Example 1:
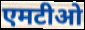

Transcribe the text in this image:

एमटीओ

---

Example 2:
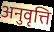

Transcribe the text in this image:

अनुवृत्ति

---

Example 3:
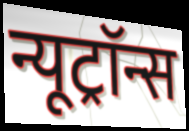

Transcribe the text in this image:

न्यूट्रॉन्स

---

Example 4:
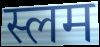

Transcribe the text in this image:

स्लम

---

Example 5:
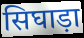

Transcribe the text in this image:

सिघाड़ा